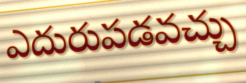
ఎదురుపడవచ్చు